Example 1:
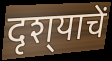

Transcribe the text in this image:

दृश्याचें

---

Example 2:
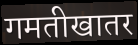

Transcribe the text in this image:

गमतीखातर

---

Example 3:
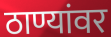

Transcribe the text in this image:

ठाण्यांवर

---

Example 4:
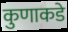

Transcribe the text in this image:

कुणाकडे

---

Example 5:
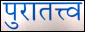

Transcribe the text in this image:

पुरातत्त्व